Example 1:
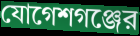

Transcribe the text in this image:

যোগেশগঞ্জের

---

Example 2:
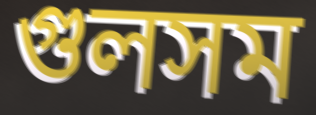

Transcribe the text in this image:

গুলসম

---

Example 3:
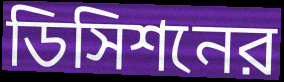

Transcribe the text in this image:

ডিসিশনের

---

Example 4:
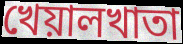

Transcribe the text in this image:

খেয়ালখাতা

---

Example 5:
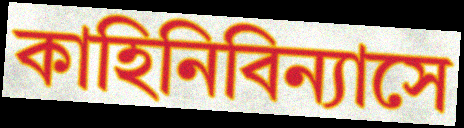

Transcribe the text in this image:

কাহিনিবিন্যাসে